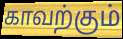
காவற்கும்